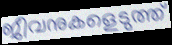
ജീവനുകളെടുത്ത്